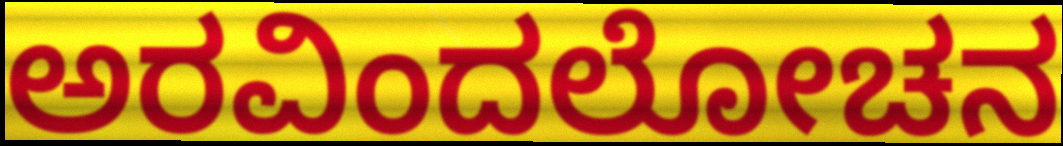
ಅರವಿಂದಲೋಚನ